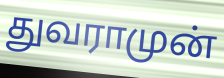
துவராமுன்